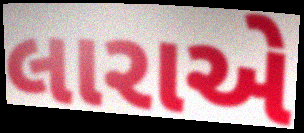
લારાએ